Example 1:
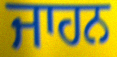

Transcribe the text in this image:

ਜਾਹਨ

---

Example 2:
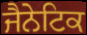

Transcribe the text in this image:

ਜੈਨੇਟਿਕ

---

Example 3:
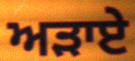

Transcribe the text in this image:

ਅੜਾਏ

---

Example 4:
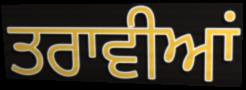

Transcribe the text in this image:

ਤਰਾਵੀਆਂ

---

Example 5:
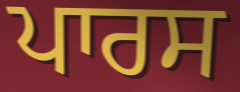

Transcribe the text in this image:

ਪਾਰਸ